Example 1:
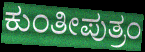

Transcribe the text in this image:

ಕುಂತೀಪುತ್ರಂ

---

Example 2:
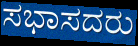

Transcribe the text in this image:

ಸಭಾಸದರು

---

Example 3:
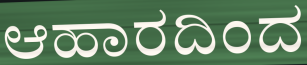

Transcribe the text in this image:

ಆಹಾರದಿಂದ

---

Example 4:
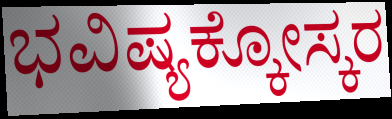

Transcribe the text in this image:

ಭವಿಷ್ಯಕ್ಕೋಸ್ಕರ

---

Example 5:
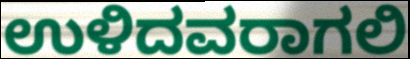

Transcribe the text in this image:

ಉಳಿದವರಾಗಲಿ